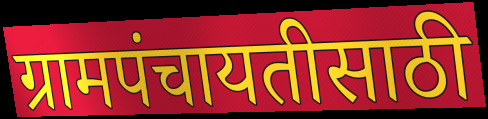
ग्रामपंचायतीसाठी